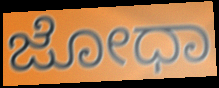
ಜೋಧಾ